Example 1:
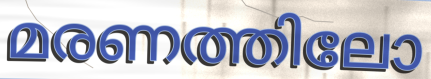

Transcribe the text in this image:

മരണത്തിലോ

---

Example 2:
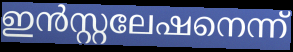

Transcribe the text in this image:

ഇൻസ്റ്റലേഷനെന്ന്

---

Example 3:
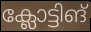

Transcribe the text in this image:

ക്ലോട്ടിങ്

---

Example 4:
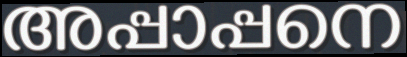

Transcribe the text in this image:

അപ്പാപ്പനെ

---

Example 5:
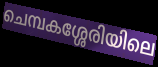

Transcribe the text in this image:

ചെമ്പകശ്ശേരിയിലെ